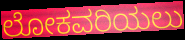
ಲೋಕವರಿಯಲು